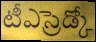
టీఎస్రెడ్కో